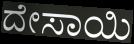
ದೇಸಾಯಿ